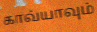
காவ்யாவும்